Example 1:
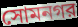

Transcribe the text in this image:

সোমনগর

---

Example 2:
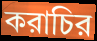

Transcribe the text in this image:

করাচির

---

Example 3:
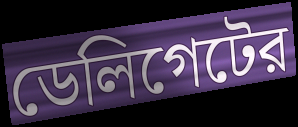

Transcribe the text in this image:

ডেলিগেটের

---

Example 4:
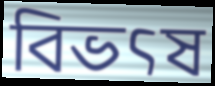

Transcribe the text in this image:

বিভৎষ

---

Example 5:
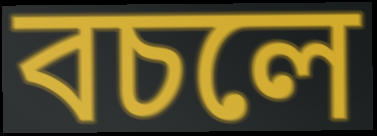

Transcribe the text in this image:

বচলে